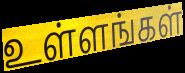
உள்ளங்கள்